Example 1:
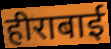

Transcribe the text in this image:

हीराबाई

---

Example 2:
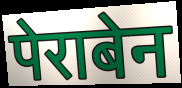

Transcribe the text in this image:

पेराबेन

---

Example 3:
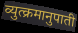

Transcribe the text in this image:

व्युत्क्रमानुपाती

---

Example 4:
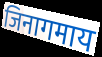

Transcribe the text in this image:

जिनागमाय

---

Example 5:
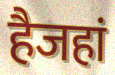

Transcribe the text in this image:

हैजहां